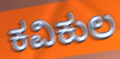
ಕವಿಕುಲ